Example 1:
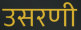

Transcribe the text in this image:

उसरणी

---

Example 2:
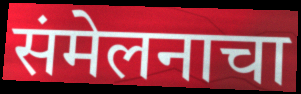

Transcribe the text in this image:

संमेलनाचा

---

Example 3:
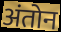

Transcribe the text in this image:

अंतोन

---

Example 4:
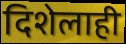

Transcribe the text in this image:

दिशेलाही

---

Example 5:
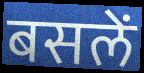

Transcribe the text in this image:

बसलें